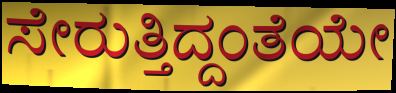
ಸೇರುತ್ತಿದ್ದಂತೆಯೇ